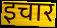
इचार